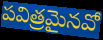
పవిత్రమైనవో